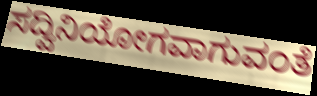
ಸದ್ವಿನಿಯೋಗವಾಗುವಂತೆ